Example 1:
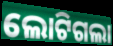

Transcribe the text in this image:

ଲୋଟିଗଲା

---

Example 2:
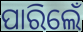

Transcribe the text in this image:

ପାରିଲେଁ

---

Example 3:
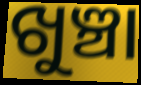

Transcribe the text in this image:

ଖୁଞ୍ଚା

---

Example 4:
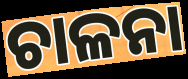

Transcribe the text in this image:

ଚାଳନା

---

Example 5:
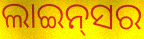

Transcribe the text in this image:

ଲାଇନ୍‌ସର